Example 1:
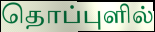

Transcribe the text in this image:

தொப்புளில்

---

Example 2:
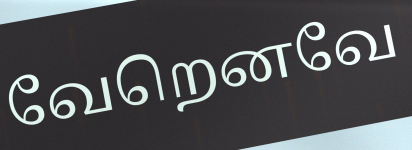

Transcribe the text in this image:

வேறெனவே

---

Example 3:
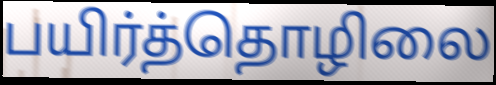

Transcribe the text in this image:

பயிர்த்தொழிலை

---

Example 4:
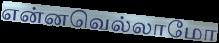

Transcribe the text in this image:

என்னவெல்லாமோ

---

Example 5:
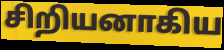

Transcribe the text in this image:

சிறியனாகிய